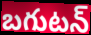
బగుటన్